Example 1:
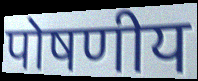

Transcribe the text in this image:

पोषणीय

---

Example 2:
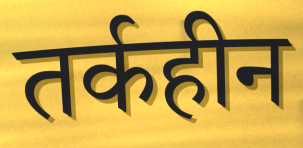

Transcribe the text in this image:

तर्कहीन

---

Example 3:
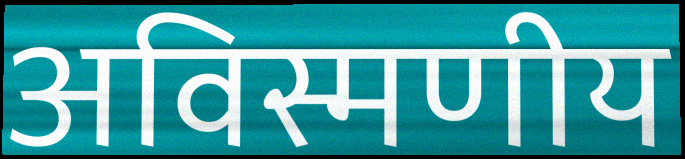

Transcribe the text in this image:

अविस्मणीय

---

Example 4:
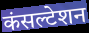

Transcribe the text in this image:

कंसल्टेशन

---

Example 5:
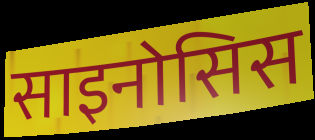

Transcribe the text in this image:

साइनोसिस